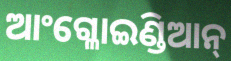
ଆଂଗ୍ଳୋଇଣ୍ଡିଆନ୍